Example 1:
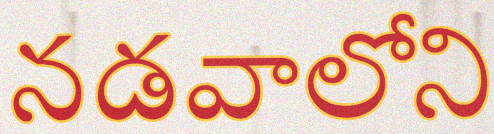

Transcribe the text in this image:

నడవాలోని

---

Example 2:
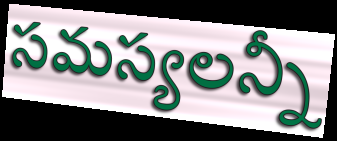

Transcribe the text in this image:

సమస్యలన్నీ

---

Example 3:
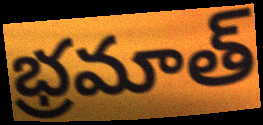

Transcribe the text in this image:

భ్రమాత్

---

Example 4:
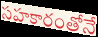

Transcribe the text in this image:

సహకారంతోనే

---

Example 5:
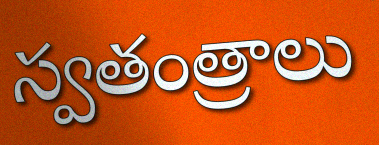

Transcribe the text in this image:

స్వతంత్రాలు